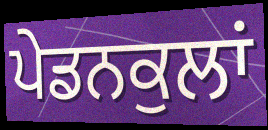
ਪੇਡਨਕੁਲਾਂ